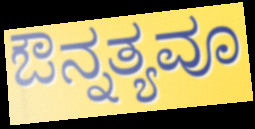
ಔನ್ನತ್ಯವೂ